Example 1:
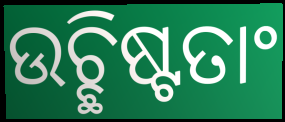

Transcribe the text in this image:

ଉଚ୍ଛିଷ୍ଟତାଂ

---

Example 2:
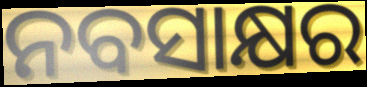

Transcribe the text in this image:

ନବସାକ୍ଷର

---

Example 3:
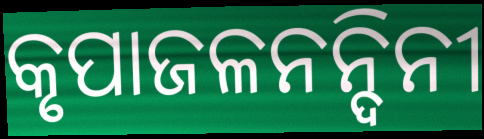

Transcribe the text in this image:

କୃପାଜଳନନ୍ଦିନୀ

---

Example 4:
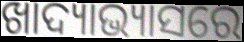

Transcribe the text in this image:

ଖାଦ୍ୟାଭ୍ୟାସରେ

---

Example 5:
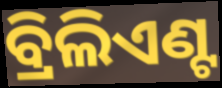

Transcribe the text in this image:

ବ୍ରିଲିଏଣ୍ଟ